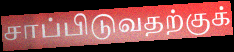
சாப்பிடுவதற்குக்